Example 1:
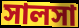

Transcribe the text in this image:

সালসা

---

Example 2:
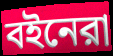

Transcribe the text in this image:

বইনেরা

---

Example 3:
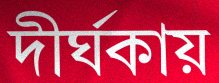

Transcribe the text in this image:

দীর্ঘকায়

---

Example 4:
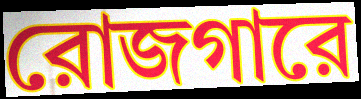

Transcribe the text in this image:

রোজগারে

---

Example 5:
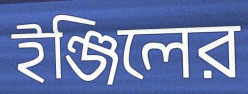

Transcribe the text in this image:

ইঞ্জিলের